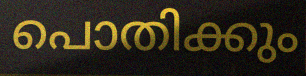
പൊതിക്കും